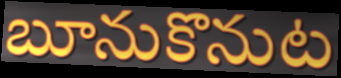
బూనుకొనుట